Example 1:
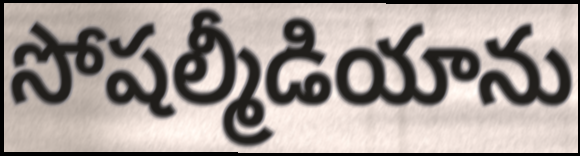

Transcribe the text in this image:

సోషల్మీడియాను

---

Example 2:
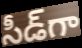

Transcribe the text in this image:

సీడ్‌గా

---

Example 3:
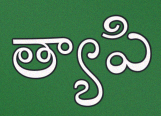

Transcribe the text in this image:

త్యాపి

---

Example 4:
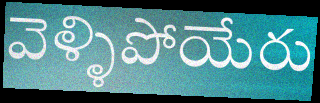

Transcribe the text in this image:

వెళ్ళిపోయేరు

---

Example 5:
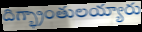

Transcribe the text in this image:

దిగ్భ్రాంతులయ్యారు